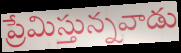
ప్రేమిస్తున్నవాడు